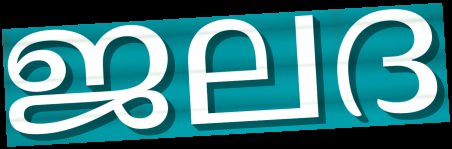
ജലദ